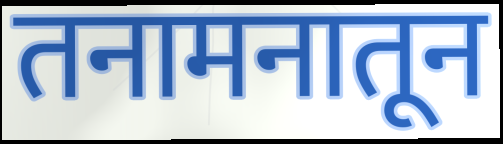
तनामनातून